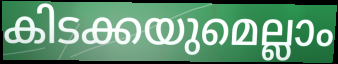
കിടക്കയുമെല്ലാം